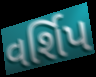
વર્શિપ